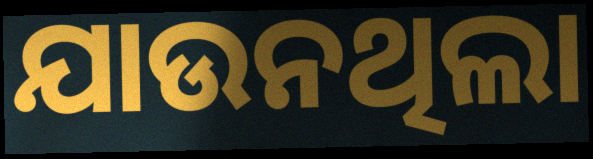
ଯାଉନଥିଲା